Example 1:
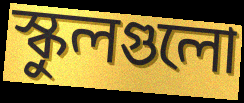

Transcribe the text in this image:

স্কুলগুলো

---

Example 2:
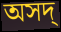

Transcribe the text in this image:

অসদ্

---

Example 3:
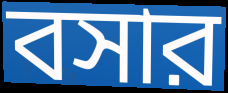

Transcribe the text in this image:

বসার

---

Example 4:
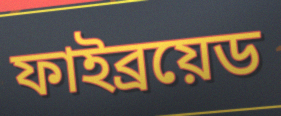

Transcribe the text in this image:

ফাইব্রয়েড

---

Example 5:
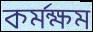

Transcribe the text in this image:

কর্মক্ষম